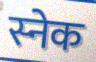
स्‍नेक